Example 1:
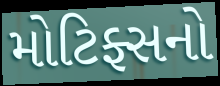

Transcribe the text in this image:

મોટિફ્સનો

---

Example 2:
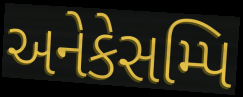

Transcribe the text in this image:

અનેકેસમ્પિ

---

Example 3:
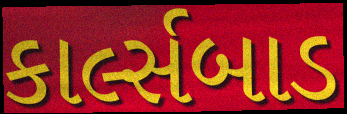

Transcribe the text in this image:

કાર્લ્સબાડ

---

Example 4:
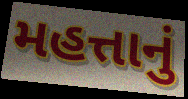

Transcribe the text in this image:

મહત્તાનું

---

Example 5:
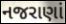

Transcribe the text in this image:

નજરાણાં